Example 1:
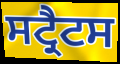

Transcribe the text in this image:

ਸਟ੍ਰੈਟਸ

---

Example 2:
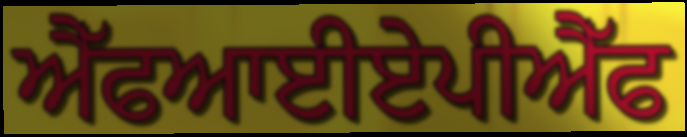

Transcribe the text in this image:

ਐੱਫਆਈਏਪੀਐੱਫ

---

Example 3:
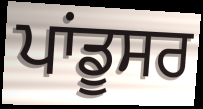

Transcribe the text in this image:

ਪਾਂਡੂਸਰ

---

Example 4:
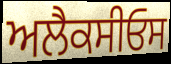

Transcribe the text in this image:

ਅਲੈਕਸੀਓਸ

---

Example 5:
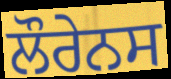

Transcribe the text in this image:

ਲੌਰੇਨਸ